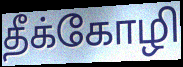
தீக்கோழி